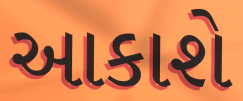
આકાશે